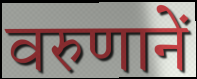
वरुणानें